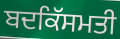
ਬਦਕਿੱਸਮਤੀ